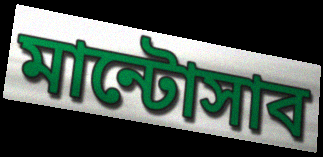
মান্টোসাব